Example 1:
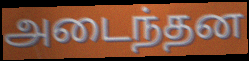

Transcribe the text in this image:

அடைந்தன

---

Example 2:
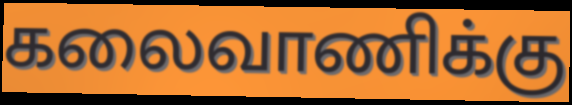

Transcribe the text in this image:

கலைவாணிக்கு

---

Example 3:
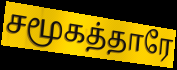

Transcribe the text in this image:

சமூகத்தாரே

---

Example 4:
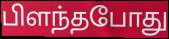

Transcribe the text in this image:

பிளந்தபோது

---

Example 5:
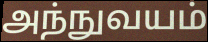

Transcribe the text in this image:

அந்நுவயம்